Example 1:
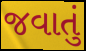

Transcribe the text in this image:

જવાતું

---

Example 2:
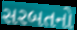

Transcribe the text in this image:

સરબતનો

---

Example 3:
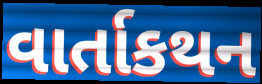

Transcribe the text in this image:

વાર્તાકથન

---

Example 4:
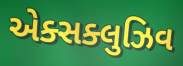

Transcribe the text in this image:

એક્સક્લુઝિવ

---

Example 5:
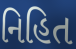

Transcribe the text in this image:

નિહિત